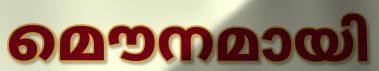
മൌനമായി